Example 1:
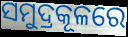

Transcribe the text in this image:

ସମୁଦ୍ରକୂଳରେ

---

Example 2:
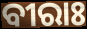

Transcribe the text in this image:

ବୀରାଃ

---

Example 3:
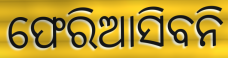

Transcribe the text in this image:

ଫେରିଆସିବନି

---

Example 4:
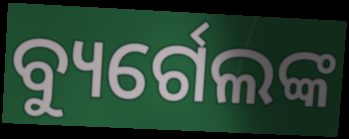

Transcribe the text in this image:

ବ୍ୟୁର୍ଗେଲଙ୍କ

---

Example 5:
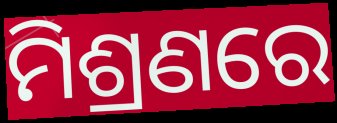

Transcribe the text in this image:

ମିଶ୍ରଣରେ